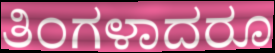
ತಿಂಗಳಾದರೂ